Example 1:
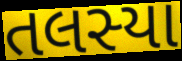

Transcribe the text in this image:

તલસ્યા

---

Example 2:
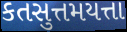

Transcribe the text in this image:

કતસુત્તમયત્તા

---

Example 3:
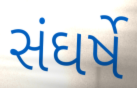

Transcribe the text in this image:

સંઘર્ષે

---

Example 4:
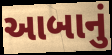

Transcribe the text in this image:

આબાનું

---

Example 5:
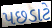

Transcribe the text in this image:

પછડાટે